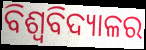
ବିଶ୍ୱବିଦ୍ୟାଳର